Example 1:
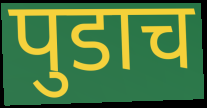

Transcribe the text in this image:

पुडाच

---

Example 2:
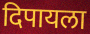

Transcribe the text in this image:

दिपायला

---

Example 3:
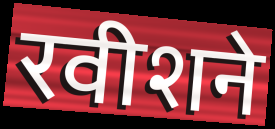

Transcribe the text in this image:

रवीशने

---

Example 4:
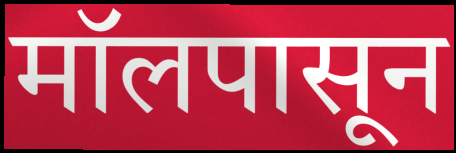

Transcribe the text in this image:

मॉलपासून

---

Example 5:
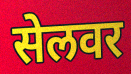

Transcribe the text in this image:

सेलवर